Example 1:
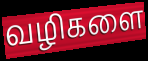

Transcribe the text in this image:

வழிகளை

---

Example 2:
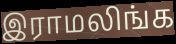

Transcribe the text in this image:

இராமலிங்க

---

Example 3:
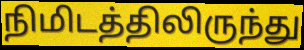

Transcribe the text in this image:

நிமிடத்திலிருந்து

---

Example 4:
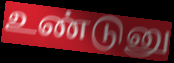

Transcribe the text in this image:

உண்டுனு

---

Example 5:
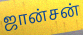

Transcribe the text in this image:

ஜான்சன்